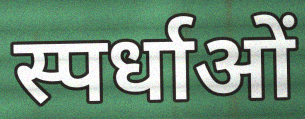
स्पर्धाओं